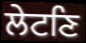
ਲੇਟਣਿ